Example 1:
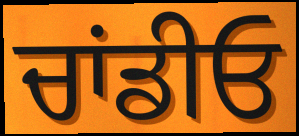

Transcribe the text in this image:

ਚਾਂਡੀਓ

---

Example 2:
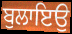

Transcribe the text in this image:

ਬੁਲਾਇਉ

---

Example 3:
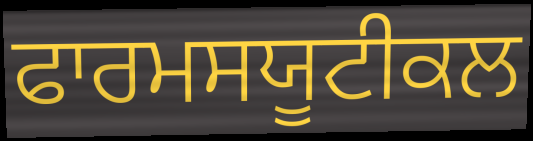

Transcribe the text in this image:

ਫਾਰਮਸਯੂਟੀਕਲ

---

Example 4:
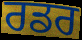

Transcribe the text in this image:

ਰਡਰ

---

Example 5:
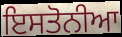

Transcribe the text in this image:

ਇਸਤੋਨੀਆ